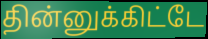
தின்னுக்கிட்டே